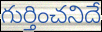
గుర్తించనిదే